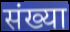
संख्या